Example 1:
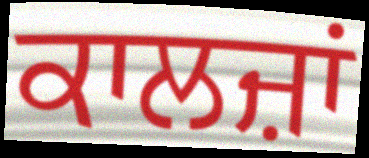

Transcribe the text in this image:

ਕਾਲਜ਼ਾਂ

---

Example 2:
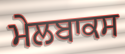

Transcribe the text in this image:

ਮੇਲਬਾਕਸ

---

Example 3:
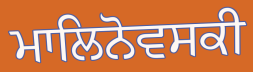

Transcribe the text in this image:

ਮਾਲਿਨੋਵਸਕੀ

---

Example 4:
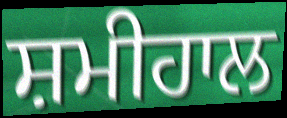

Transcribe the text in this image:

ਸ਼ਮੀਹਾਲ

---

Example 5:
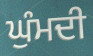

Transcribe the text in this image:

ਘੁੰਮਦੀ